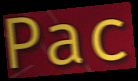
Pac